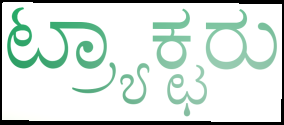
ಟ್ರ್ಯಾಕ್ಟರು